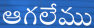
ఆగలేము